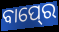
ବାପ୍‍ରେ